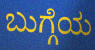
ಬುಗ್ಗೆಯ